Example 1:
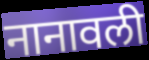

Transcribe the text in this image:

नानावली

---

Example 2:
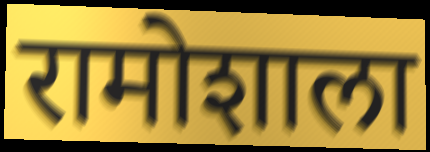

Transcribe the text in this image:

रामोशाला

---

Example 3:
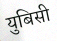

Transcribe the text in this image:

युबिसी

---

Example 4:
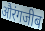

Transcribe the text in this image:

औरंगजीब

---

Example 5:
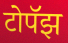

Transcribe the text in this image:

टोपॅझ